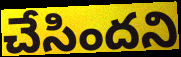
చేసిందని